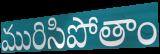
మురిసిపోతాం